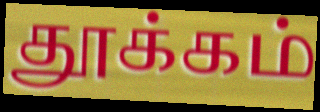
தூக்கம்